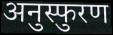
अनुस्फुरण